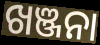
ଖଞ୍ଜନା